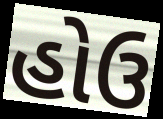
હોઉ